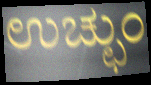
ಉಚ್ಛುಂ